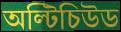
অল্টিচিউড